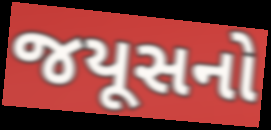
જયૂસનો